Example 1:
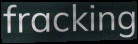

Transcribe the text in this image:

fracking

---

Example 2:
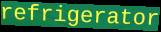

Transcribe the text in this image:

refrigerator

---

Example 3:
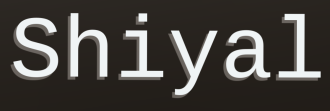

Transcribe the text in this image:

Shiyal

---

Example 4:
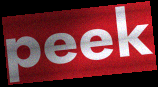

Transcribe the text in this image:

peek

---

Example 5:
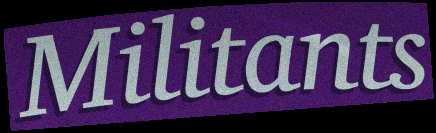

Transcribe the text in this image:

Militants